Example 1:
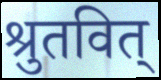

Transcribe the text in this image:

श्रुतवित्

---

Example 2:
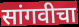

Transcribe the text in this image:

सांगवीचा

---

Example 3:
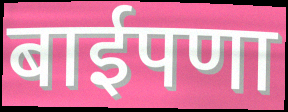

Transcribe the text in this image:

बाईपणा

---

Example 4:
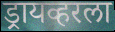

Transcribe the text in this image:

ड्रायव्हरला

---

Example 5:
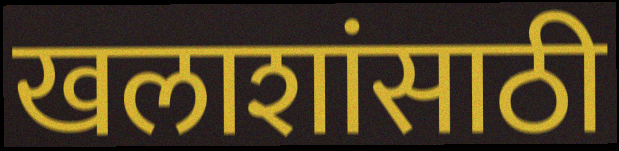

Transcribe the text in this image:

खलाशांसाठी